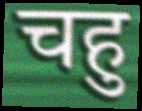
चहु